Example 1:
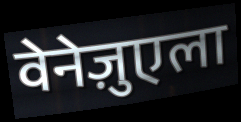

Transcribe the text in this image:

वेनेज़ुएला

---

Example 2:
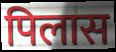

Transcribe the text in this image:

पिलास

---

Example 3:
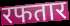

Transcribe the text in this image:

रफतार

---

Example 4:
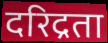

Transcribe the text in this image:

दरिद्रता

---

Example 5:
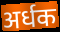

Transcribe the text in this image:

अर्धक